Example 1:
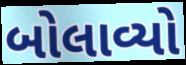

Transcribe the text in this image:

બોલાવ્યો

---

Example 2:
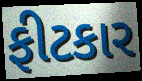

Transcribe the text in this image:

ફીટકાર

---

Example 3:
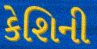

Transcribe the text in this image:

કેશિની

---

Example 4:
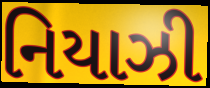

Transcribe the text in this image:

નિયાઝી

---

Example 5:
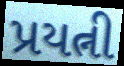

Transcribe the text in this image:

પ્રયત્ની